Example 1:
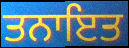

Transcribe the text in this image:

ਤਨਾਇਤ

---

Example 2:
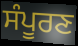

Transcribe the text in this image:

ਸੰਪੂਰਣ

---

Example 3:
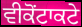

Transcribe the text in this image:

ਵੀਕੋਂਟਾਕਟੇ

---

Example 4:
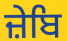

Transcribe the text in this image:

ਜ਼ੇਬਿ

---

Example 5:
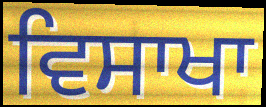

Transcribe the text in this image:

ਵਿਸਾਖਾ